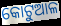
କୋଟୁଆଳ